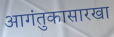
आगंतुकासारखा